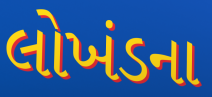
લોખંડના